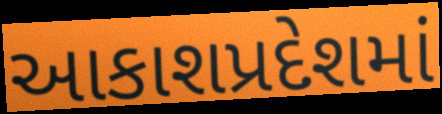
આકાશપ્રદેશમાં